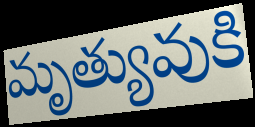
మృత్యువుకి